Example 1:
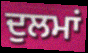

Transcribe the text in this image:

ਦੁਲਮਾਂ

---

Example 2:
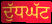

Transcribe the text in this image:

ਦੁੱਧਘੱਟ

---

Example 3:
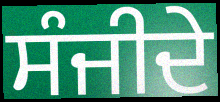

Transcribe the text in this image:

ਸੰਜੀਦੇ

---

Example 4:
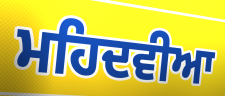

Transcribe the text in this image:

ਮਹਿਦਵੀਆ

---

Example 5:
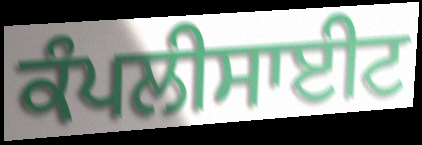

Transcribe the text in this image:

ਕੰਪਲੀਸਾਈਟ